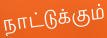
நாட்டுக்கும்